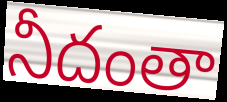
నీదంతా